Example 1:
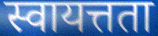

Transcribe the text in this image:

स्वायत्तता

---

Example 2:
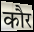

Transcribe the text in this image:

कौर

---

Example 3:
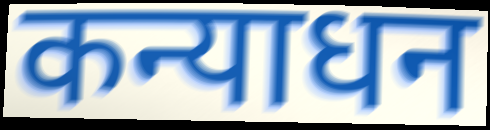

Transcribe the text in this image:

कन्याधन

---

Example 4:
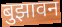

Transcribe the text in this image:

बुझावन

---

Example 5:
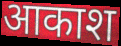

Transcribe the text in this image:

आकाश